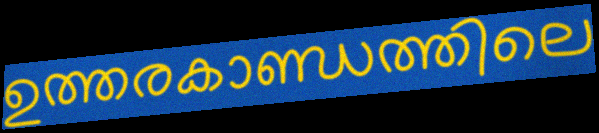
ഉത്തരകാണ്ഡത്തിലെ